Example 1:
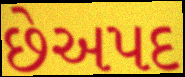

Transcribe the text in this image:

છેઅપદ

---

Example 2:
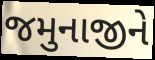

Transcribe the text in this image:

જમુનાજીને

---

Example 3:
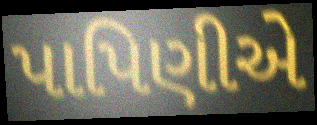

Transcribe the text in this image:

પાપિણીએ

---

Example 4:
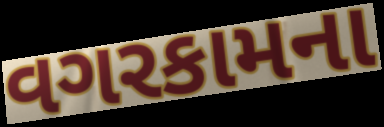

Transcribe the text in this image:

વગરકામના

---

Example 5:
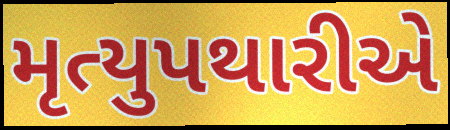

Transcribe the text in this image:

મૃત્યુપથારીએ